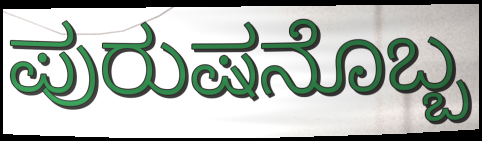
ಪುರುಷನೊಬ್ಬ